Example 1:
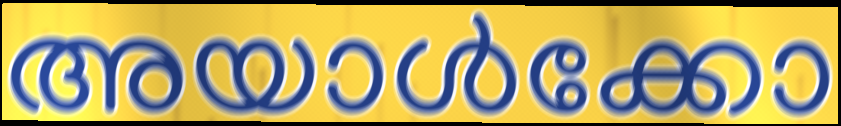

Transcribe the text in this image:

അയാൾക്കോ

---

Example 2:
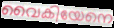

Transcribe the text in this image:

വൈകിയേനെ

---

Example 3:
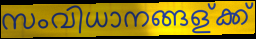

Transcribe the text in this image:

സംവിധാനങ്ങള്ക്ക്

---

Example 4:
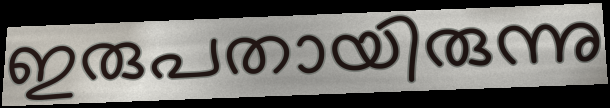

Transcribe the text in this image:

ഇരുപതായിരുന്നു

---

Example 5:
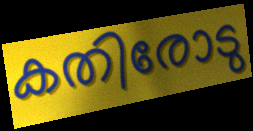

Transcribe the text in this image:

കതിരോടു